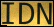
IDN